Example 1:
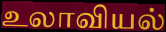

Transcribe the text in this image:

உலாவியல்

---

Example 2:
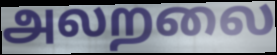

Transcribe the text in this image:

அலறலை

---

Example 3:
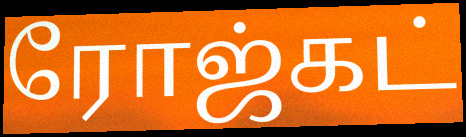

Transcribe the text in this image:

ரோஜ்கட்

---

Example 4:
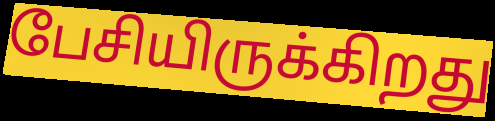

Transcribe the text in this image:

பேசியிருக்கிறது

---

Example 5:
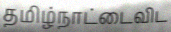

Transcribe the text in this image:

தமிழ்நாட்டைவிட